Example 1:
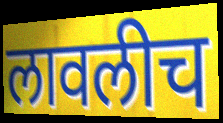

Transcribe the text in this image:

लावलीच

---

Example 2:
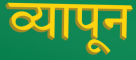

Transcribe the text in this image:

व्यापून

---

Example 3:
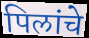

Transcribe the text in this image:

पिलांचे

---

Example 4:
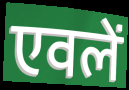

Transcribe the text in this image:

एवलें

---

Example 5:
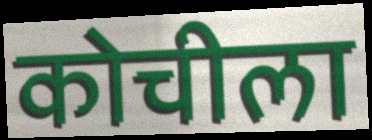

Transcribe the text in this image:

कोचीला